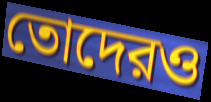
তোদেরও